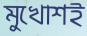
মুখোশই